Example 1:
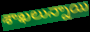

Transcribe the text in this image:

శాఖలున్నాయి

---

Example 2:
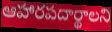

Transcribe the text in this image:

ఆహారపదార్థాలని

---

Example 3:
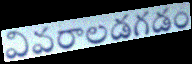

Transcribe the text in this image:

వివరాలడగడం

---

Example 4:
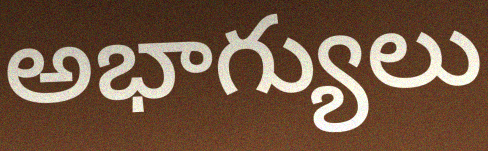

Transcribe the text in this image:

అభాగ్యులు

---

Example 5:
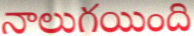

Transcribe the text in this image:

నాలుగయింది